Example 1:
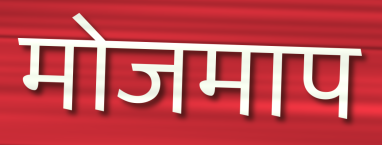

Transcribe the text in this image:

मोजमाप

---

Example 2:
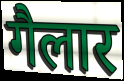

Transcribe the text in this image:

गैलार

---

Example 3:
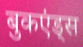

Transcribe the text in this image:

बुकएंड्स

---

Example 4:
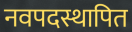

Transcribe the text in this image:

नवपदस्थापित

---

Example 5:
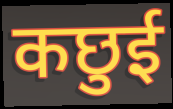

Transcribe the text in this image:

कछुई